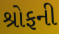
શ્રોફની